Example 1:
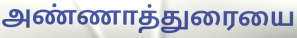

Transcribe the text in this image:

அண்ணாத்துரையை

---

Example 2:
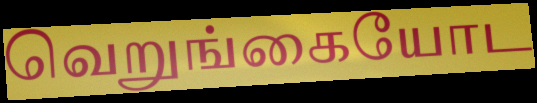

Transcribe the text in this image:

வெறுங்கையோட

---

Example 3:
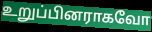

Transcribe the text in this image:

உறுப்பினராகவோ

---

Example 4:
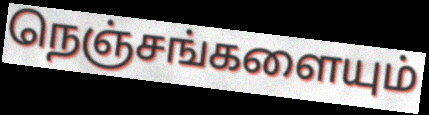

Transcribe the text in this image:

நெஞ்சங்களையும்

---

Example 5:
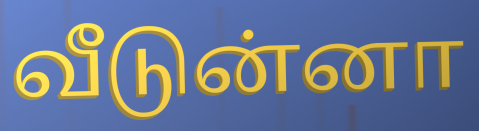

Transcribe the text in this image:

வீடுன்னா